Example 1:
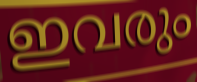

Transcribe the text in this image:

ഇവരും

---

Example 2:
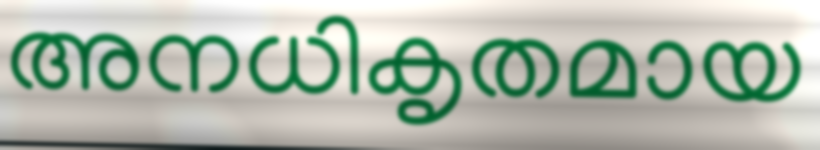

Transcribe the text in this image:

അനധികൃതമായ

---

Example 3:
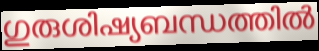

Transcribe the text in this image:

ഗുരുശിഷ്യബന്ധത്തിൽ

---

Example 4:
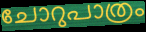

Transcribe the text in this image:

ചോറുപാത്രം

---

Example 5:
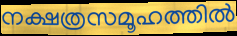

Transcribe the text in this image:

നക്ഷത്രസമൂഹത്തിൽ